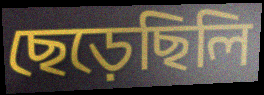
ছেড়েছিলি